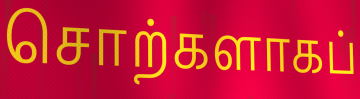
சொற்களாகப்